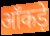
ऑंकड़े